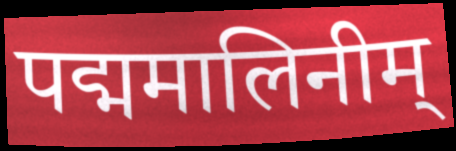
पद्ममालिनीम्